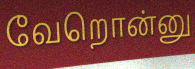
வேறொன்னு